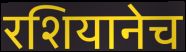
रशियानेच